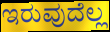
ಇರುವುದೆಲ್ಲ